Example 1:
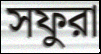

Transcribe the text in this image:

সফুরা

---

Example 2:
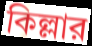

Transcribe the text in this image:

কিল্লার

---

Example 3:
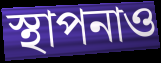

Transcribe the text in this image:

স্থাপনাও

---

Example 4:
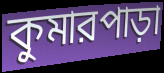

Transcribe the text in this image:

কুমারপাড়া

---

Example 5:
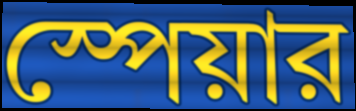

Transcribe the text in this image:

স্পেয়ার